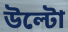
উল্টো